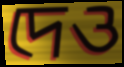
দেও